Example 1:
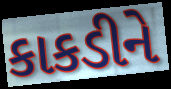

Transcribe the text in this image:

કાકડીને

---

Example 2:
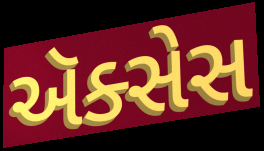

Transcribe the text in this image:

ઍક્સેસ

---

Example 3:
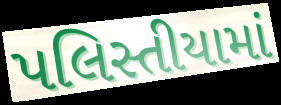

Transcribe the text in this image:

પલિસ્તીયામાં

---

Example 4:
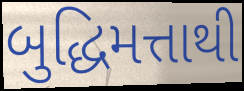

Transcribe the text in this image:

બુદ્ધિમત્તાથી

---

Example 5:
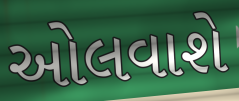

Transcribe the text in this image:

ઓલવાશે